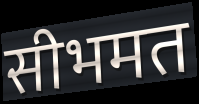
सीभमत